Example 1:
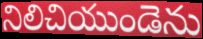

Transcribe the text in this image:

నిలిచియుండెను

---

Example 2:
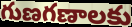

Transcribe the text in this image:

గుణగణాలకు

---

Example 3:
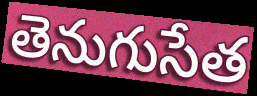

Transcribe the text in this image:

తెనుగుసేత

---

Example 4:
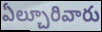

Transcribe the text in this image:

ఏల్చూరివారు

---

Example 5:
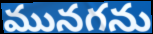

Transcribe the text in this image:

మునగను